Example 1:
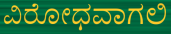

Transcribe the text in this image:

ವಿರೋಧವಾಗಲಿ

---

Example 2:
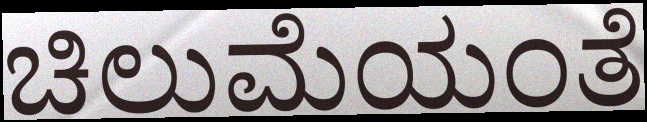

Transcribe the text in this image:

ಚಿಲುಮೆಯಂತೆ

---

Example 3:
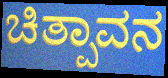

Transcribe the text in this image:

ಚಿತ್ಪಾವನ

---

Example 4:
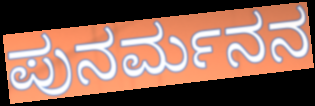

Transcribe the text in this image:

ಪುನರ್ಮನನ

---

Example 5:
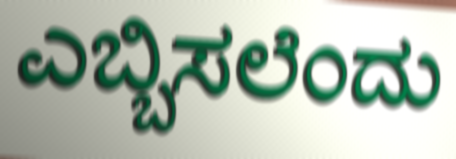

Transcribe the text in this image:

ಎಬ್ಬಿಸಲೆಂದು